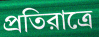
প্রতিরাত্রে